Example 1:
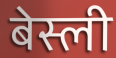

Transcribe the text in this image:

बेस्ली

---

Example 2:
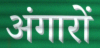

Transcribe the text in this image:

अंगारों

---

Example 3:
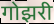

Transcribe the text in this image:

गोझरी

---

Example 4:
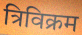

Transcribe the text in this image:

त्रिविक्रम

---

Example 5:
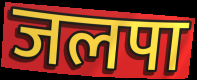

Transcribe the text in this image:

जलपा